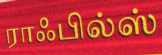
ராஃபில்ஸ்